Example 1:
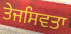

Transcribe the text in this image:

ਤੇਜਸਿਵਤਾ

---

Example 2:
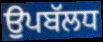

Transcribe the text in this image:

ਉਪਬੱਲਧ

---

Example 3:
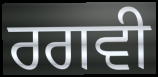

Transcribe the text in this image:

ਰਗਵੀ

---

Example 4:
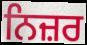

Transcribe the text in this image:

ਨਿਜ਼ਰ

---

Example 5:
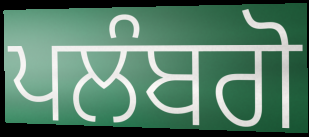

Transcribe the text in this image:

ਪਲੰਬਗੋ